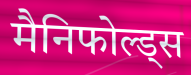
मैनिफोल्ड्स